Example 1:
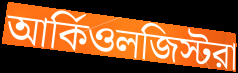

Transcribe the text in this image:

আর্কিওলজিস্টরা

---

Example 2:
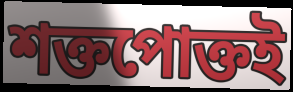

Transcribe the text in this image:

শক্তপোক্তই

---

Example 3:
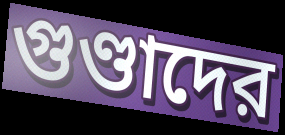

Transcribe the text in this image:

গুণ্ডাদের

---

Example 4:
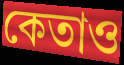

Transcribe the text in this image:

কেতাও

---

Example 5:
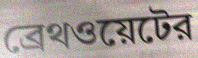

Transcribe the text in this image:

ব্রেথওয়েটের